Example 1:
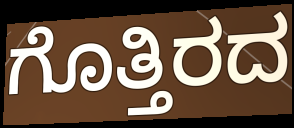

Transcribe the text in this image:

ಗೊತ್ತಿರದ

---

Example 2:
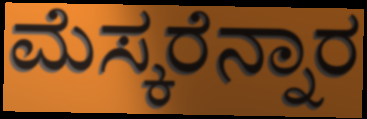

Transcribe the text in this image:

ಮೆಸ್ಕರೆನ್ನಾರ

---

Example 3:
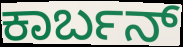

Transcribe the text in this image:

ಕಾರ್ಬನ್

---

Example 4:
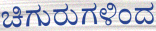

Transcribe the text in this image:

ಚಿಗುರುಗಳಿಂದ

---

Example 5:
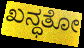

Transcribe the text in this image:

ಖನ್ಧತೋ